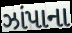
ઝાંપાના